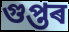
গুপ্তৰ